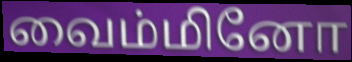
வைம்மினோ